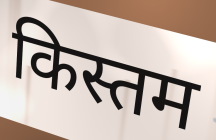
किस्तम